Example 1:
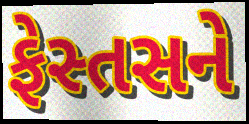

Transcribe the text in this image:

ફેસ્તસને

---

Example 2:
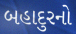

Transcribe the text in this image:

બહાદુરનો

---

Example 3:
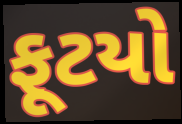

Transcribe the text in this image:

ફૂટયો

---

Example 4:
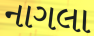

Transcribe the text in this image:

નાગલા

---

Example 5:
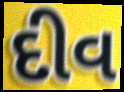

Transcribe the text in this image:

દીવ